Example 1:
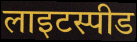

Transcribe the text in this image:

लाइटस्पीड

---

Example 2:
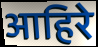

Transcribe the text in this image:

आहिरे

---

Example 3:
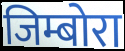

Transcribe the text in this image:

जिम्बोरा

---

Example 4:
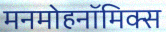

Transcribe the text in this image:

मनमोहनॉमिक्स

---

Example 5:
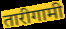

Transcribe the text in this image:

तारीगामी